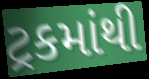
ટ્રકમાંથી